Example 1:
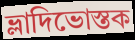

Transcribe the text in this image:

ভ্লাদিভোস্তক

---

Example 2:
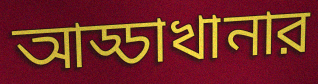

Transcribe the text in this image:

আড্ডাখানার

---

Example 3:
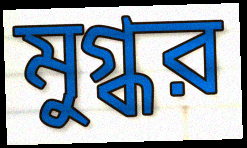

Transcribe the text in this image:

মুগ্ধর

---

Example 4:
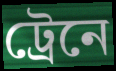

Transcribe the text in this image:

ট্রেনে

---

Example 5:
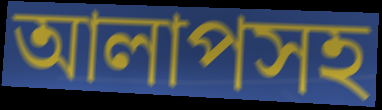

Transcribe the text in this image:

আলাপসহ